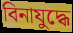
বিনাযুদ্ধে